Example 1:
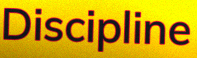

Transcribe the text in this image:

Discipline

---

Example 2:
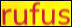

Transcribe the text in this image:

rufus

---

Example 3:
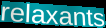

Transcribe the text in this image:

relaxants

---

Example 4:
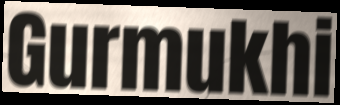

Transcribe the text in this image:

Gurmukhi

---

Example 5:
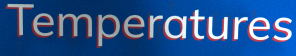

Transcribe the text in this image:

Temperatures